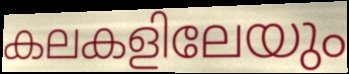
കലകളിലേയും